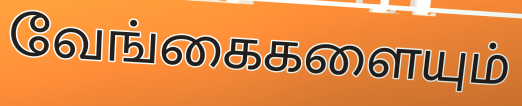
வேங்கைகளையும்